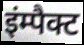
इंम्पैक्ट